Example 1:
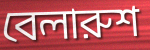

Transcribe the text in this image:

বেলারুশ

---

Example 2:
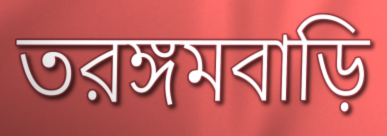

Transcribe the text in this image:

তরঙ্গমবাড়ি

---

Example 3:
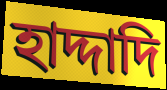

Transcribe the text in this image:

হাদ্দাদি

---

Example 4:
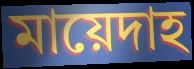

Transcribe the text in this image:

মায়েদাহ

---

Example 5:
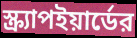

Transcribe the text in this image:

স্ক্র্যাপইয়ার্ডের